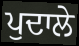
ਪੁਦਾਲੇ